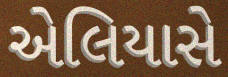
એલિયાસે